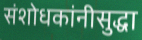
संशोधकांनीसुद्धा